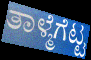
ತಾಳ್ಮೆಗೆಟ್ಟ